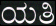
ಯತಿ